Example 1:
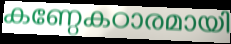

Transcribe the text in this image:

കണ്ഠേകഠാരമായി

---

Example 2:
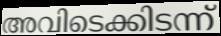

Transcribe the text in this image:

അവിടെക്കിടന്ന്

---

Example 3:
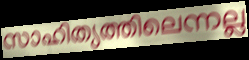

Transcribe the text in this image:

സാഹിത്യത്തിലെന്നല്ല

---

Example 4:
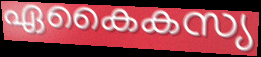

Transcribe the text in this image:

ഏകൈകസ്യ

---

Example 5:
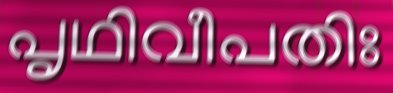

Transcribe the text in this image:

പൃഥിവീപതിഃ